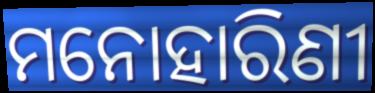
ମନୋହାରିଣୀ